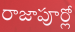
రాజాపూర్లో